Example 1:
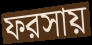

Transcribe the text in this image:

ফরসায়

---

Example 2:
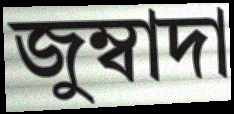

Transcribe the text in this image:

জুম্বাদা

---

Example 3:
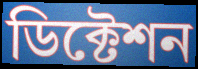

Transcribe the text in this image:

ডিক্টেশন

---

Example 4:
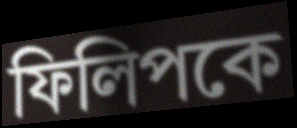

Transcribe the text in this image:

ফিলিপকে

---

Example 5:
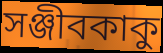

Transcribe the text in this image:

সঞ্জীবকাকু